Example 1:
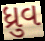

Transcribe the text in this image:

ધ્રુવ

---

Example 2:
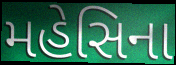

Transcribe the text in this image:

મહેસિના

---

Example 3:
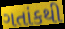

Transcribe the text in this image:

ગતાંકથી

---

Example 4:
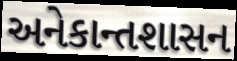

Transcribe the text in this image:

અનેકાન્તશાસન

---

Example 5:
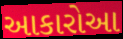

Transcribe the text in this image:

આકારોઆ